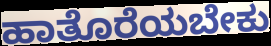
ಹಾತೊರೆಯಬೇಕು